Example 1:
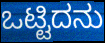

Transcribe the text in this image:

ಒಟ್ಟಿದನು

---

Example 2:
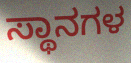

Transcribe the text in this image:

ಸ್ಥಾನಗಳ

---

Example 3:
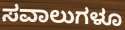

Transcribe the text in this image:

ಸವಾಲುಗಳೂ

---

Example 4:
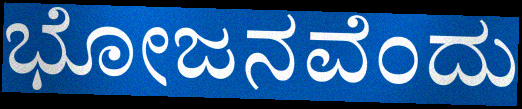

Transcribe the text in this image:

ಭೋಜನವೆಂದು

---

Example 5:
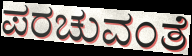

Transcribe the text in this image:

ಪರಚುವಂತೆ